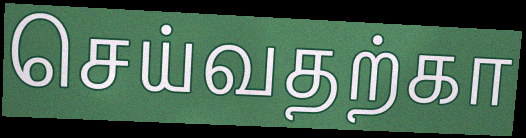
செய்வதற்கா